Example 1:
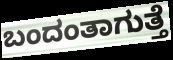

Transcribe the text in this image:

ಬಂದಂತಾಗುತ್ತೆ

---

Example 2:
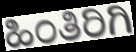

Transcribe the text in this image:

ಹಿಂತಿರಿಗಿ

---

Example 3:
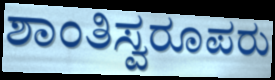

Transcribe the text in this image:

ಶಾಂತಿಸ್ವರೂಪರು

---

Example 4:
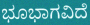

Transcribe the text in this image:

ಭೂಭಾಗವಿದೆ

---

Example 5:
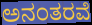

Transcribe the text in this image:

ಅನಂತರವೆ